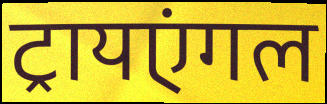
ट्रायएंगल